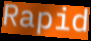
Rapid